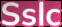
Sslc